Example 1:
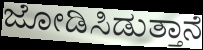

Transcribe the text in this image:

ಜೋಡಿಸಿಡುತ್ತಾನೆ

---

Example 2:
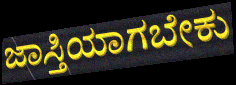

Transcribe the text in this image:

ಜಾಸ್ತಿಯಾಗಬೇಕು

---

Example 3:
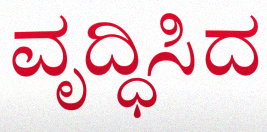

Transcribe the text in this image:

ವೃದ್ಧಿಸಿದ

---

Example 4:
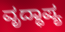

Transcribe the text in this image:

ವೃದ್ಧಾಪ್ಯ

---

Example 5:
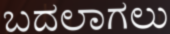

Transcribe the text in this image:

ಬದಲಾಗಲು